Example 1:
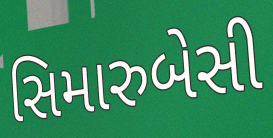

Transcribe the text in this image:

સિમારુબેસી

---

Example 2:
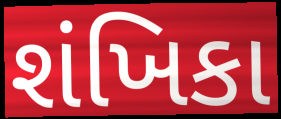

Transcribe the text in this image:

શંખિકા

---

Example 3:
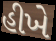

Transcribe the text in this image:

હીખે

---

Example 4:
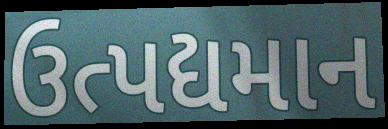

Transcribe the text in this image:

ઉત્પદ્યમાન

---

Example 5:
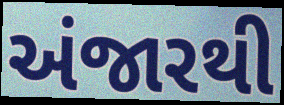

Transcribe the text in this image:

અંજારથી